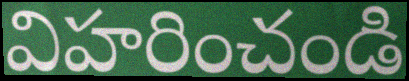
విహరించండి